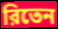
রিতেন